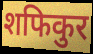
शफिकुर